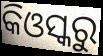
କିଓସ୍କରୁ